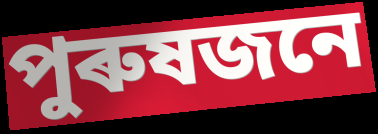
পুৰুষজনে